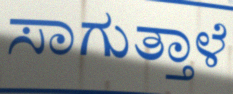
ಸಾಗುತ್ತಾಳೆ